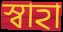
স্বাহা